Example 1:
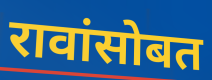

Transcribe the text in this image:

रावांसोबत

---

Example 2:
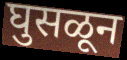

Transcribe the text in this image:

घुसळून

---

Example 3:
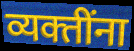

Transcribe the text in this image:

व्यक्‍तींना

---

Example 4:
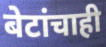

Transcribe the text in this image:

बेटांचाही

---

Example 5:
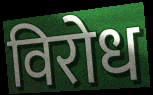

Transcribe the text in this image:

विरोध